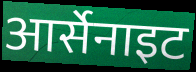
आर्सेनाइट